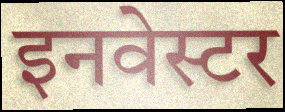
इनवेस्टर